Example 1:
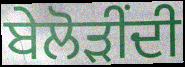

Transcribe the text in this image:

ਬੇਲੋੜੀਂਦੀ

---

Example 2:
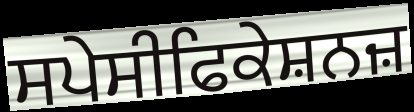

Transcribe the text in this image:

ਸਪੇਸੀਫਿਕੇਸ਼ਨਜ਼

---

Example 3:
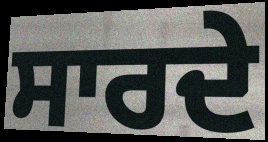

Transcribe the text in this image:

ਸਾਰਦੇ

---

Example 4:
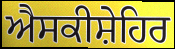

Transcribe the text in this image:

ਐਸਕੀਸ਼ੇਹਿਰ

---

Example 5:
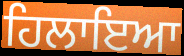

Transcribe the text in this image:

ਹਿਲਾਇਆ